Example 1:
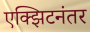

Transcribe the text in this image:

एक्झिटनंतर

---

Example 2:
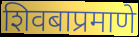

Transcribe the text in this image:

शिवबाप्रमाणे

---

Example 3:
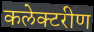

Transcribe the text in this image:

कलेक्टरीण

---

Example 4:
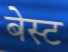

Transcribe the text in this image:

बेस्ट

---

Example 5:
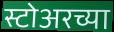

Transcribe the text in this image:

स्टोअरच्या